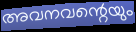
അവനവന്റെയും